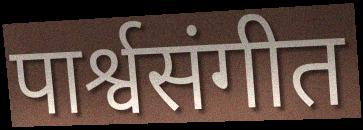
पार्श्वसंगीत